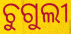
ଚୁଗୁଲୀ